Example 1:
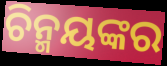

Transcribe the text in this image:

ଚିନ୍ମୟଙ୍କର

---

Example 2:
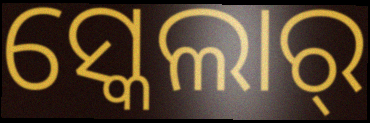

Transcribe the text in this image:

ସ୍କେଲାର୍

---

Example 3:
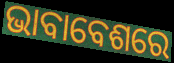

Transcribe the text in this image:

ଭାବାବେଶରେ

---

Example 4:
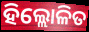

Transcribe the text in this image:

ହିଲ୍ଲୋଳିତ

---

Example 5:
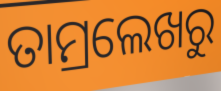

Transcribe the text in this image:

ତାମ୍ରଲେଖରୁ